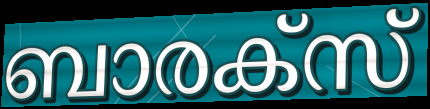
ബാരക്സ്